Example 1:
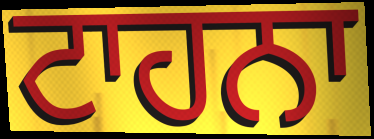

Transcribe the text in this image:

ਟਾਹਨਾ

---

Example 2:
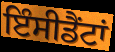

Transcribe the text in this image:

ਇੰਸੀਡੈਂਟਾਂ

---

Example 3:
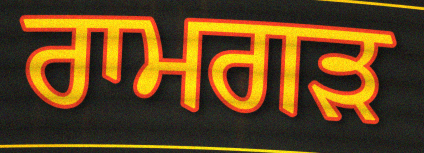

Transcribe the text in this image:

ਰਾਮਗੜ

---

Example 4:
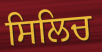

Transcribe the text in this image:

ਸਿਲਿਚ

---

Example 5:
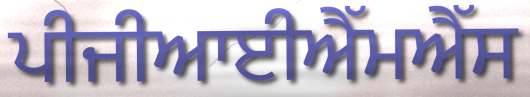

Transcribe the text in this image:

ਪੀਜੀਆਈਐੱਮਐੱਸ